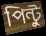
পিন্টু